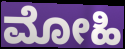
ಮೋಹಿ